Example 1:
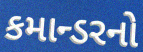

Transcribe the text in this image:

કમાન્ડરનો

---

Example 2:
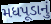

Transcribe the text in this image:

મધપૂડાનું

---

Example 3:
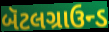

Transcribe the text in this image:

બૅટલગ્રાઉન્ડ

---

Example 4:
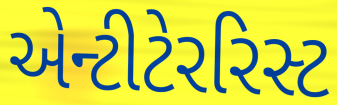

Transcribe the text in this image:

એન્ટીટેરરિસ્ટ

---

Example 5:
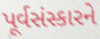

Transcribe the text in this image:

પૂર્વસંસ્કારને